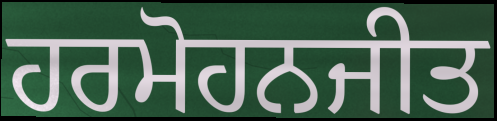
ਹਰਮੋਹਨਜੀਤ